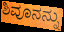
ಶಿವೂನನ್ನು